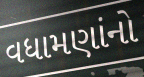
વધામણાંનો